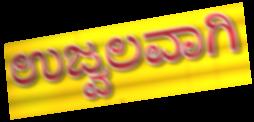
ಉಜ್ವಲವಾಗಿ